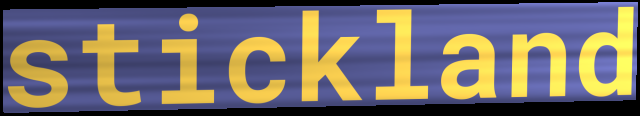
stickland